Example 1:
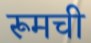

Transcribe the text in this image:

रूमची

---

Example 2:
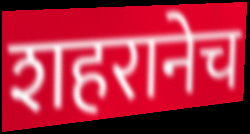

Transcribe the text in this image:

शहरानेच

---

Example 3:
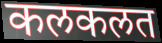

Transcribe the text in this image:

कलकलत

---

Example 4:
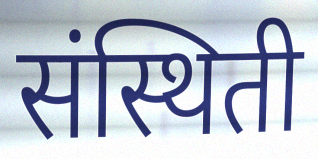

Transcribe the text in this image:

संस्थिती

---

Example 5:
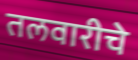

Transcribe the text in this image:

तलवारीचे